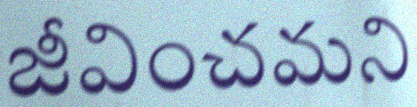
జీవించమని